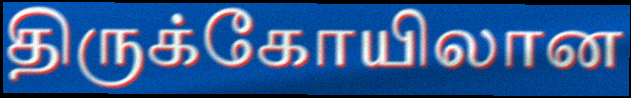
திருக்கோயிலான